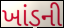
ખાંડની